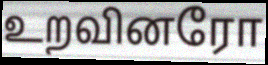
உறவினரோ